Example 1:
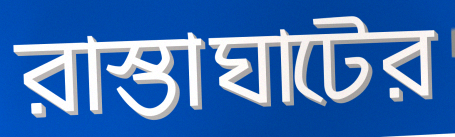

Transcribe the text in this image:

রাস্তাঘাটের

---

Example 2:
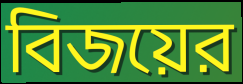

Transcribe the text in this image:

বিজয়ের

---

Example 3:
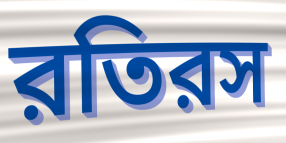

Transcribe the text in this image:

রতিরস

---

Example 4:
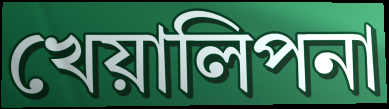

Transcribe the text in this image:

খেয়ালিপনা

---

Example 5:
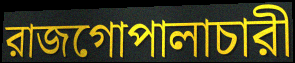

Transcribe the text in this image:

রাজগোপালাচারী